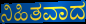
ನಿಹಿತವಾದ